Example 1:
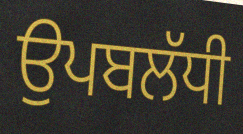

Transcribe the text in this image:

ਉਪਬਲੱਧੀ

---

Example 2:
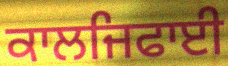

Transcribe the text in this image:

ਕਾਲਜਿਫਾਈ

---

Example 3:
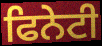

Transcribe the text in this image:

ਫਿਨੇਟੀ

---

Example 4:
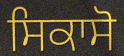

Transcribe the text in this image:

ਸਿਕਾਸੋ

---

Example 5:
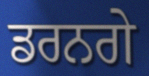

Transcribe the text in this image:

ਡਰਨਗੇ